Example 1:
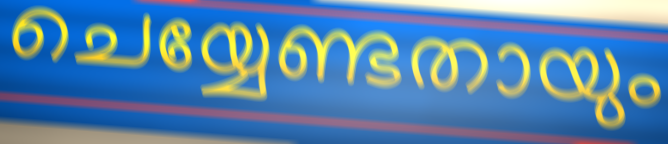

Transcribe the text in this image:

ചെയ്യേണ്ടതായും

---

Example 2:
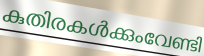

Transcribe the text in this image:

കുതിരകൾക്കുംവേണ്ടി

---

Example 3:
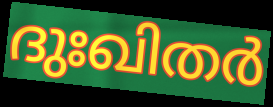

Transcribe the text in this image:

ദുഃഖിതർ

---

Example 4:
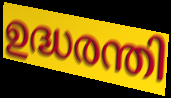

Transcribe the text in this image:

ഉദ്ധരന്തി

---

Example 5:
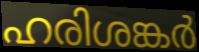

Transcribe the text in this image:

ഹരിശങ്കർ